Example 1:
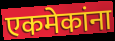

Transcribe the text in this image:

एकमेकांना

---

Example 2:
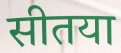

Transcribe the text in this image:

सीतया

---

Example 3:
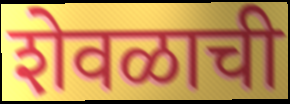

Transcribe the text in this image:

शेवळाची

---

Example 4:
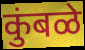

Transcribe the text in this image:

कुंबळे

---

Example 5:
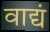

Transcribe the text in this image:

वाद्यं